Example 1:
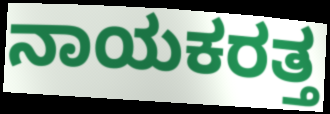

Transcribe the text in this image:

ನಾಯಕರತ್ತ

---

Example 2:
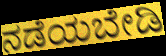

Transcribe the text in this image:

ನಡೆಯಬೇಡಿ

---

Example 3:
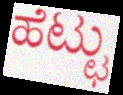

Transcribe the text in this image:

ಹೆಟ್ಟು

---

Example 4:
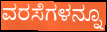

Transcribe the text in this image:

ವರಸೆಗಳನ್ನೂ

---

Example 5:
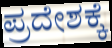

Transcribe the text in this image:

ಪ್ರದೇಶಕ್ಕೆ